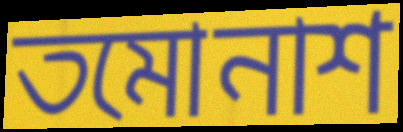
তমোনাশ